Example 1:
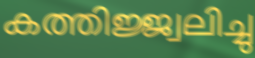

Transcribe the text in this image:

കത്തിജ്ജ്വലിച്ചു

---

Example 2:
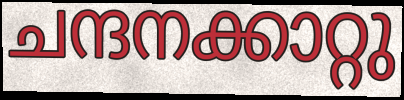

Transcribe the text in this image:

ചന്ദനക്കാറ്റു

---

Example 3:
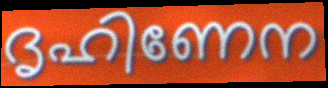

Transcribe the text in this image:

ദൃഹിണേന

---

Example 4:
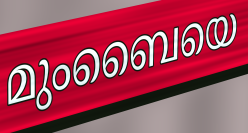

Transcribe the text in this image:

മുംബൈയെ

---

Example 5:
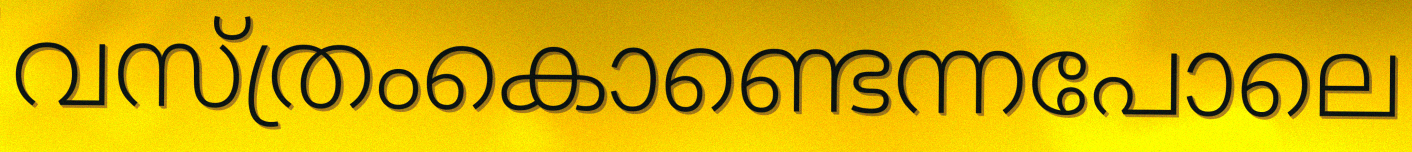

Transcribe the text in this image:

വസ്ത്രംകൊണ്ടെന്നപോലെ